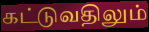
கட்டுவதிலும்